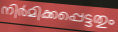
നിർമിക്കപ്പെട്ടതും